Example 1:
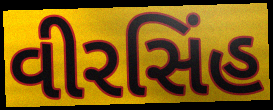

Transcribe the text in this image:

વીરસિંહ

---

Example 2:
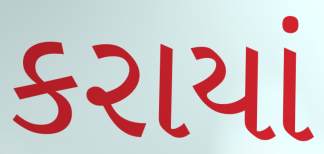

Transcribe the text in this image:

કરાયાં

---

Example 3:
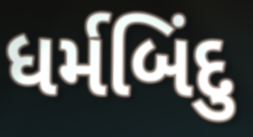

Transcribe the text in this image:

ધર્મબિંદુ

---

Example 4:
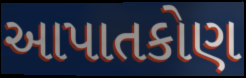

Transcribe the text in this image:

આપાતકોણ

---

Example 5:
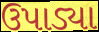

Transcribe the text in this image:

ઉપાડ્યા